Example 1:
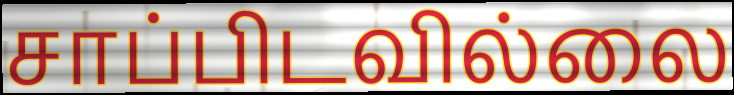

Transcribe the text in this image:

சாப்பிடவில்லை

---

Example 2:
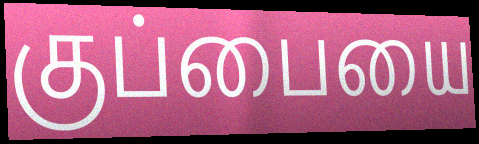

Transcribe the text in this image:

குப்பையை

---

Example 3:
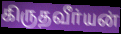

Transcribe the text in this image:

கிருதவீர்யன்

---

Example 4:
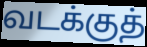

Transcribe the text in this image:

வடக்குத்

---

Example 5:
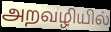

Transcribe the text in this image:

அறவழியில்